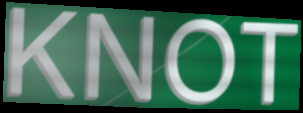
KNOT